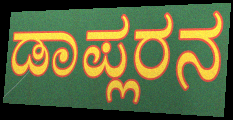
ಡಾಪ್ಲರನ